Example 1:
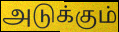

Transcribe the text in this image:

அடுக்கும்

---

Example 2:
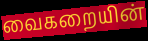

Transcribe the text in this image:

வைகறையின்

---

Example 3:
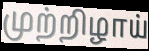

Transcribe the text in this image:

முற்றிழாய்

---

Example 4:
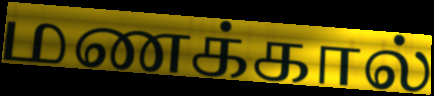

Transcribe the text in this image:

மணக்கால்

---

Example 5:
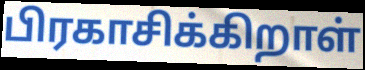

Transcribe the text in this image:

பிரகாசிக்கிறாள்